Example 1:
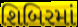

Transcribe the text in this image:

શિબિરમાં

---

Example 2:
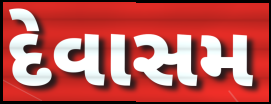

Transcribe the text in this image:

દેવાસમ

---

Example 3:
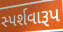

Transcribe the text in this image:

સ્પર્શવારૂપ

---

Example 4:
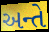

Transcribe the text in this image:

અન્તે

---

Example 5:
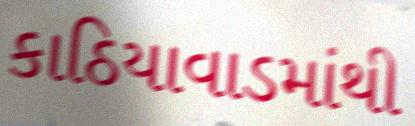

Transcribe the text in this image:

કાઠિયાવાડમાંથી